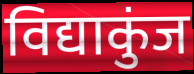
विद्याकुंज